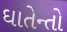
ઘાતેન્તો